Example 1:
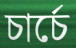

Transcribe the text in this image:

চার্চে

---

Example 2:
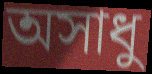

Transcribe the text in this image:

অসাধু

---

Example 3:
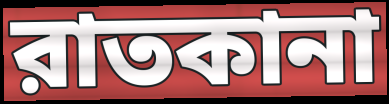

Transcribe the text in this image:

রাতকানা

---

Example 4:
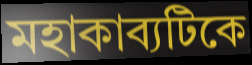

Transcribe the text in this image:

মহাকাব্যটিকে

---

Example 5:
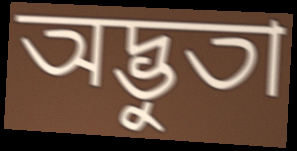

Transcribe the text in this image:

অদ্ভুতা